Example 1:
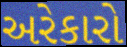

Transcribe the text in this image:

અરેકારો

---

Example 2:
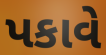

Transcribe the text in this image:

પકાવે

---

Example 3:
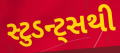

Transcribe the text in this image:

સ્ટુડન્ટ્સથી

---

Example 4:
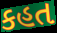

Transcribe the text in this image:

કહત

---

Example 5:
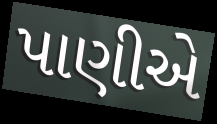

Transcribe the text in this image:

પાણીએ